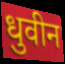
धुवीन